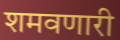
शमवणारी